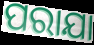
ପରାଯା